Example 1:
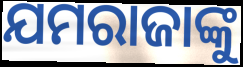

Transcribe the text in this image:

ଯମରାଜାଙ୍କୁ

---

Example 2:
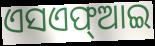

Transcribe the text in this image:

ଏସଏଫ୍ଆଇ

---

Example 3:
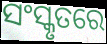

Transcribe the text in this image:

ସଂସ୍କୃତରେ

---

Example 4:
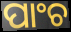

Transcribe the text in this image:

ପାଂଚ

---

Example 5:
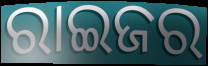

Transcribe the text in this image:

ରାଇଜର